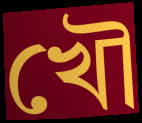
খৌ